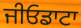
ਜੀਓਡਾਟਾ